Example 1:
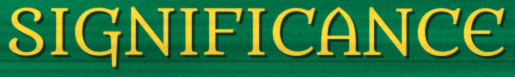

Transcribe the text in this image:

SIGNIFICANCE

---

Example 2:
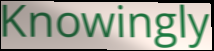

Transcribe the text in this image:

Knowingly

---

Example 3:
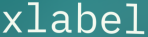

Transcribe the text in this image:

xlabel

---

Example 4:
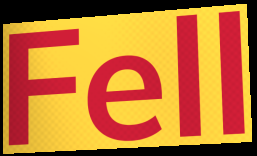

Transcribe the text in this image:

Fell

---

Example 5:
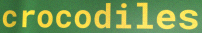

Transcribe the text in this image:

crocodiles